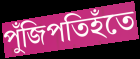
পুঁজিপতিহঁতে